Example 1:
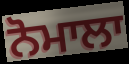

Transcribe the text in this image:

ਨੋਮਾਲਾ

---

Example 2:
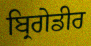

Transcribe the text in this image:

ਬ੍ਰਿਗੇਡੀਰ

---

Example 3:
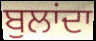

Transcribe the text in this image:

ਬੁਲਾਂਦਾ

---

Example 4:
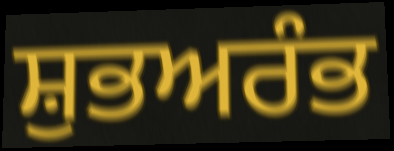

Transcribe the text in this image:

ਸ਼ੁਭਅਰੰਭ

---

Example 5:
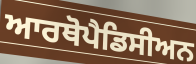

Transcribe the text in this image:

ਆਰਥੋਪੈਡਿਸੀਅਨ